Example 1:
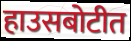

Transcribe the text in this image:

हाउसबोटीत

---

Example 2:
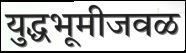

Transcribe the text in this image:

युद्धभूमीजवळ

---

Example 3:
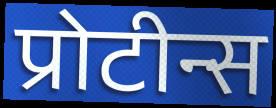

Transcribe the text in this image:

प्रोटीन्स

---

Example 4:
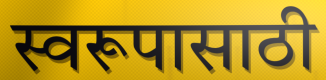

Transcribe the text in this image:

स्वरूपासाठी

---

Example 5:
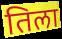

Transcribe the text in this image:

तिला